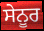
ਸੇਨੂਰ